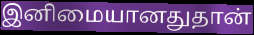
இனிமையானதுதான்